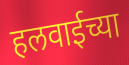
हलवाईच्या